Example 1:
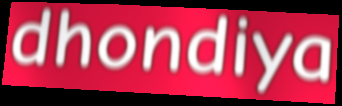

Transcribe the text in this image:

dhondiya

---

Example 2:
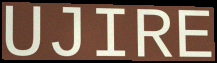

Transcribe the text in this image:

UJIRE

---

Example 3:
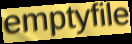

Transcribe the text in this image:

emptyfile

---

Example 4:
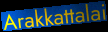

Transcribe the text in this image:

Arakkattalai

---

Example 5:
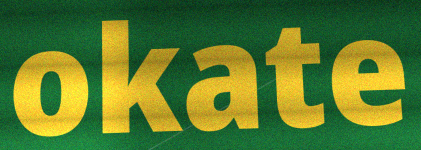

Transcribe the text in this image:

okate